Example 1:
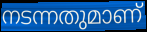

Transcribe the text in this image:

നടന്നതുമാണ്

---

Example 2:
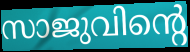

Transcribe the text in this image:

സാജുവിന്റെ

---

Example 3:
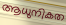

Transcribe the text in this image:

ആധുനികത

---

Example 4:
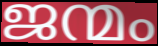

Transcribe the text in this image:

ജന്മം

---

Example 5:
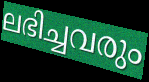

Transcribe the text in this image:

ലഭിച്ചവരും